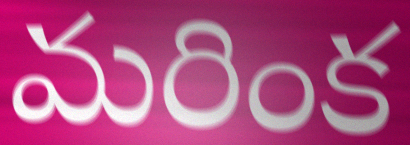
మరింక